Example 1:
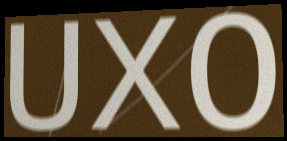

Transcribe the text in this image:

UXO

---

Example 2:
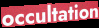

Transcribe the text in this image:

occultation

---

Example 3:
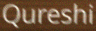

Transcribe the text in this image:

Qureshi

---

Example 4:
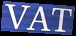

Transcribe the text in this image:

VAT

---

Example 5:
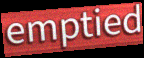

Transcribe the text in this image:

emptied